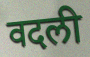
वदली